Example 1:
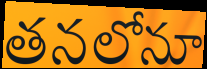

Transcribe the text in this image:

తనలోనూ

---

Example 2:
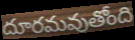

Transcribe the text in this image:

దూరమవుతోంది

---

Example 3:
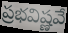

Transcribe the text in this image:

ప్రభవిష్ణవే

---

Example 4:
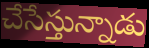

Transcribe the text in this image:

చేసేస్తున్నాడు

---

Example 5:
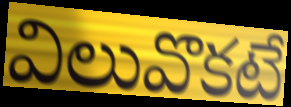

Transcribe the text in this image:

విలువొకటే